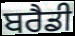
ਬਰੈਡੀ